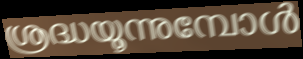
ശ്രദ്ധയൂന്നുമ്പോൾ